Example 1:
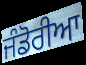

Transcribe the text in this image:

ਜੰਡੋਰੀਆ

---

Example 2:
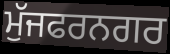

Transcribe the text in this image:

ਮੁੱਜਫਰਨਗਰ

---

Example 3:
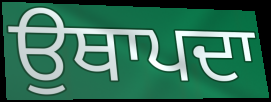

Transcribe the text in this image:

ਉਥਾਪਦਾ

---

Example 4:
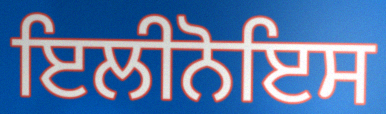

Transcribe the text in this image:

ਇਲੀਨੋਇਸ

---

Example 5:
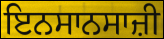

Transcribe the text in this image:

ਇਨਸਾਨਸਾਜ਼ੀ